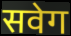
सवेग